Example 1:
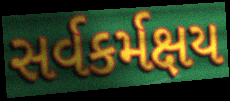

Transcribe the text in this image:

સર્વકર્મક્ષય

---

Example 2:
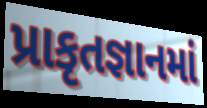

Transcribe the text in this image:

પ્રાકૃતજ્ઞાનમાં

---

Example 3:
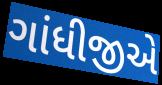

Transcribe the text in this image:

ગાંધીજીએ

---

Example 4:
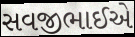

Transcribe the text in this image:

સવજીભાઈએ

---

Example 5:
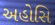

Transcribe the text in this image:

અહોસિ